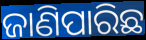
ଜାଣିପାରିଛ